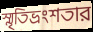
স্মৃতিভ্রংশতার